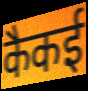
कैकई